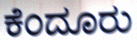
ಕೆಂದೂರು